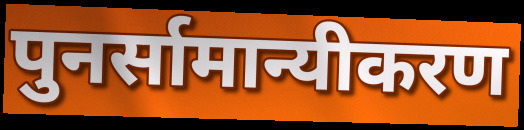
पुनर्सामान्यीकरण